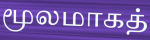
மூலமாகத்